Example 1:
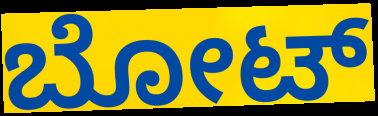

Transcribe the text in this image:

ಬೋಟ್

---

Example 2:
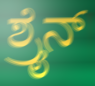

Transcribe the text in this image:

ಶ್ರೈನ್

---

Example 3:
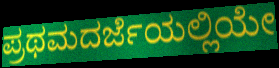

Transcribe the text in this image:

ಪ್ರಥಮದರ್ಜೆಯಲ್ಲಿಯೇ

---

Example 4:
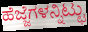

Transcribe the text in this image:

ಹೆಜ್ಜೆಗಳನ್ನಿಟ್ಟು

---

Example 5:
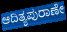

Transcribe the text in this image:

ಆದಿತ್ಯಪುರಾಣೇ